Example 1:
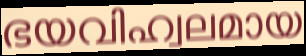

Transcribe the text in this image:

ഭയവിഹ്വലമായ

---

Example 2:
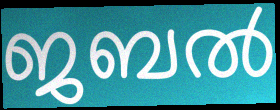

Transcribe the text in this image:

ജബൽ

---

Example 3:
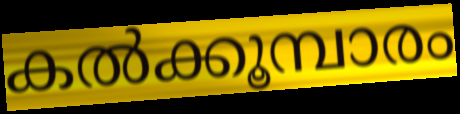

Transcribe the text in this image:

കൽക്കൂമ്പാരം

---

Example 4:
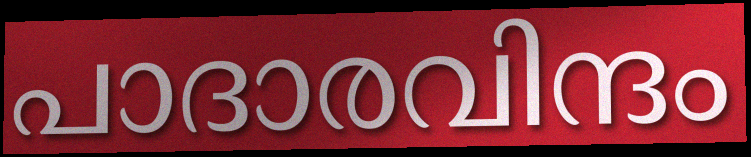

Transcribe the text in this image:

പാദാരവിന്ദം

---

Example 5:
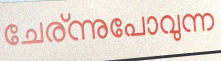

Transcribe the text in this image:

ചേര്ന്നുപോവുന്ന